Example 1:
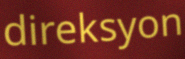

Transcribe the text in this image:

direksyon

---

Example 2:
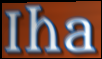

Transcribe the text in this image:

Iha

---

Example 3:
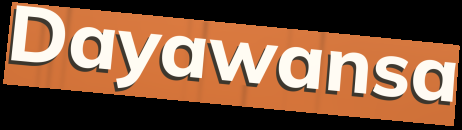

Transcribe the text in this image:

Dayawansa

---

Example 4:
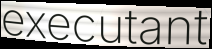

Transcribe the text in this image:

executant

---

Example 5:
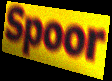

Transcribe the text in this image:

Spoor